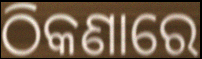
ଠିକଣାରେ